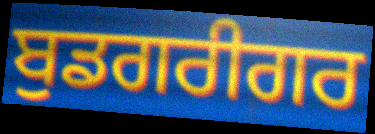
ਬੁਡਗਰੀਗਰ